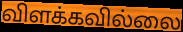
விளக்கவில்லை